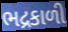
ભદ્રકાળી